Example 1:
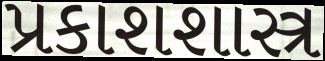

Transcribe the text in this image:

પ્રકાશશાસ્ત્ર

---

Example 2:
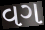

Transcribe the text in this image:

વગ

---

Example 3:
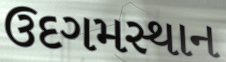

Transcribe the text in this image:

ઉદગમસ્થાન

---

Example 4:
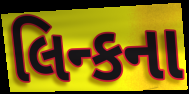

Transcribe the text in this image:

લિન્કના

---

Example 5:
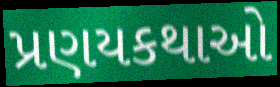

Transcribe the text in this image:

પ્રણયકથાઓ